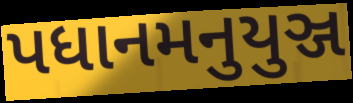
પધાનમનુયુઞ્જ